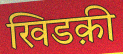
खिडक़ी